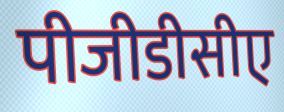
पीजीडीसीए